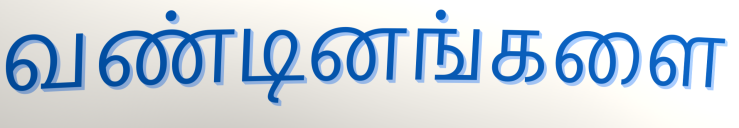
வண்டினங்களை